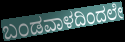
ಬಂಡವಾಳದಿಂದಲೇ